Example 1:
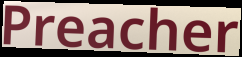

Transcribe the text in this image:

Preacher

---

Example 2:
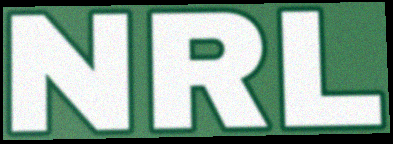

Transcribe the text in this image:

NRL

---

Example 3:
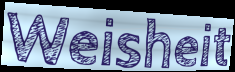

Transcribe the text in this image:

Weisheit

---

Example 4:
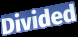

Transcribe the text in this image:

Divided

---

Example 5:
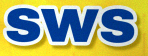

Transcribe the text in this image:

sws